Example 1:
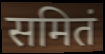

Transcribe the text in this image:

समितं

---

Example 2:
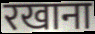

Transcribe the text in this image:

रखाना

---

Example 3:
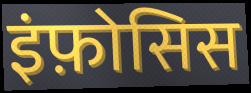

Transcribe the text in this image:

इंफ़ोसिस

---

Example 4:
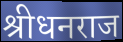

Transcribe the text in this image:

श्रीधनराज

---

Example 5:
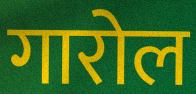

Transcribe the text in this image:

गारोल